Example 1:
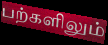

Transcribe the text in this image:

பற்களிலும்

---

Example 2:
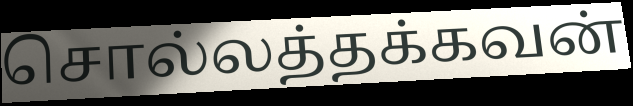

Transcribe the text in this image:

சொல்லத்தக்கவன்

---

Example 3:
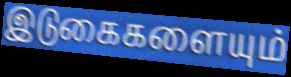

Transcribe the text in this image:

இடுகைகளையும்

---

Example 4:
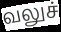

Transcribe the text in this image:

வலுச்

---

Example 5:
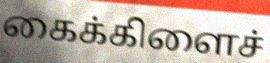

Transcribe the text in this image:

கைக்கிளைச்